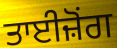
ਤਾਈਜ਼ੋਂਗ